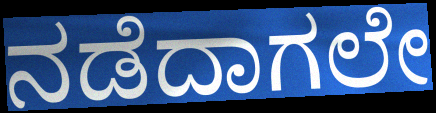
ನಡೆದಾಗಲೇ